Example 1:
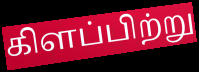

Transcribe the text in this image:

கிளப்பிற்று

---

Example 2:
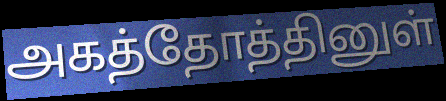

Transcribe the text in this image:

அகத்தோத்தினுள்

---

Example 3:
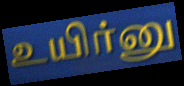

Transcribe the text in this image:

உயிர்னு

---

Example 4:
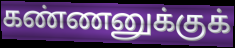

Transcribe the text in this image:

கண்ணனுக்குக்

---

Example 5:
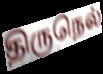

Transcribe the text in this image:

திருநெல்